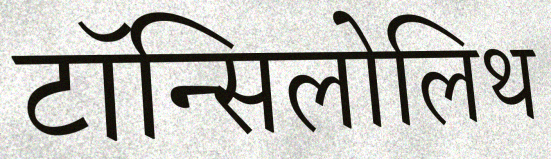
टॉन्सिलोलिथ